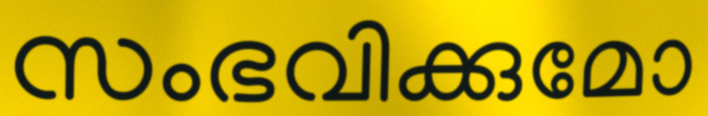
സംഭവിക്കുമോ